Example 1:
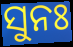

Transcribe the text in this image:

ସୁନଃ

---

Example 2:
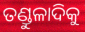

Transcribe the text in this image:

ତଣ୍ଡୁଳାଦିକୁ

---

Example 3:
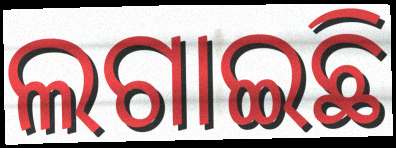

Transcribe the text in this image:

ଲଗାଇଛି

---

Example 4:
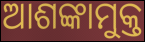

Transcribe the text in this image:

ଆଶଙ୍କାମୁକ୍ତ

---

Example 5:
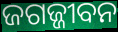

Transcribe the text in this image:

ଜଗଜ୍ଜୀବନ